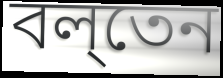
বল্‌তেন